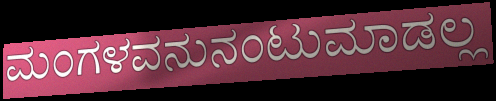
ಮಂಗಳವನುನಂಟುಮಾಡಲ್ಲ